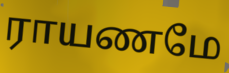
ராயணமே